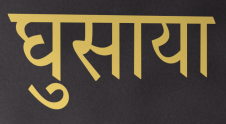
घुसाया